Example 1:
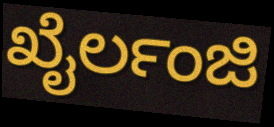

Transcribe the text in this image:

ಖೈರ್ಲಂಜಿ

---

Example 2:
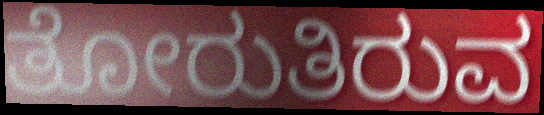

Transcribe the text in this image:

ತೋರುತಿರುವ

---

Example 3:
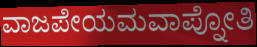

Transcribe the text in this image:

ವಾಜಪೇಯಮವಾಪ್ನೋತಿ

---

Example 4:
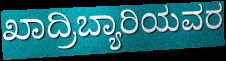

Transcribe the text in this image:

ಖಾದ್ರಿಬ್ಯಾರಿಯವರ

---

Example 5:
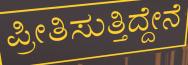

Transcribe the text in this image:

ಪ್ರೀತಿಸುತ್ತಿದ್ದೇನೆ